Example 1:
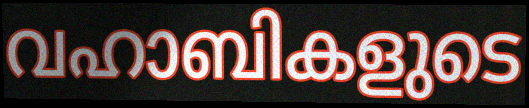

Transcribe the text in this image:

വഹാബികളുടെ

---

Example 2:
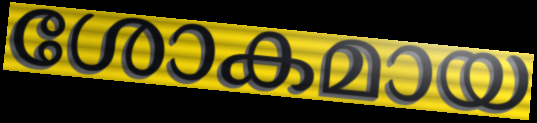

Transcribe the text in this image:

ശോകമായ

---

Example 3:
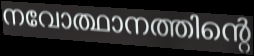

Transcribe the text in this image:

നവോത്ഥാനത്തിന്റെ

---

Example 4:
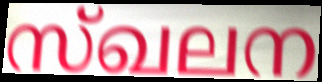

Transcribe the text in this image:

സ്ഖലന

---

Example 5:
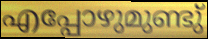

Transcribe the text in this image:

എപ്പോഴുമുണ്ടു്